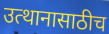
उत्थानासाठीच